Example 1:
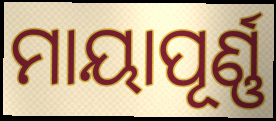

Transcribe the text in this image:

ମାୟାପୂର୍ଣ୍ଣ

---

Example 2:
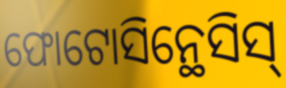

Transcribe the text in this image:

ଫୋଟୋସିନ୍ଥେସିସ୍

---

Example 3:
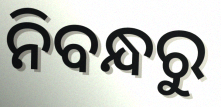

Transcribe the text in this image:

ନିବନ୍ଧରୁ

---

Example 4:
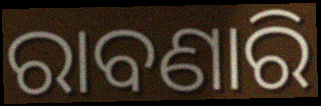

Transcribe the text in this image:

ରାବଣାରି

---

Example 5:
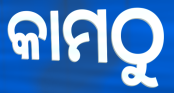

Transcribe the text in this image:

କାମଠୁ